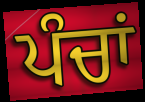
ਪੰਚਾਂ